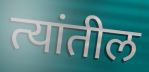
त्‍यांतील